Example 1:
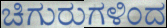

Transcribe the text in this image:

ಚಿಗುರುಗಳಿಂದ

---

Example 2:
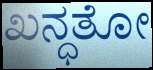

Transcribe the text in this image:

ಖನ್ಧತೋ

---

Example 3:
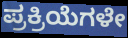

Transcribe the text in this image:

ಪ್ರಕ್ರಿಯೆಗಳೇ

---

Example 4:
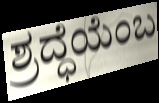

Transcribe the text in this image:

ಶ್ರದ್ಧೆಯೆಂಬ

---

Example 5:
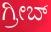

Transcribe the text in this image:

ಗ್ರೀಬ್